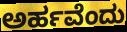
ಅರ್ಹವೆಂದು